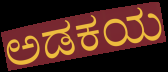
ಅಡಕಯ